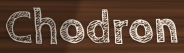
Chodron